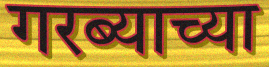
गरब्याच्या